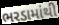
ભરડામાંથી